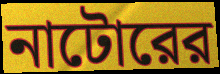
নাটোরের